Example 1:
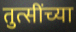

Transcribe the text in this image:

तुत्सींच्या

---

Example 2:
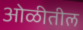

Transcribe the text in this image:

ओळीतील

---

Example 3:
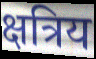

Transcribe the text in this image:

क्षत्रिय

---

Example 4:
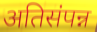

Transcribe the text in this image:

अतिसंपन्न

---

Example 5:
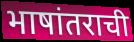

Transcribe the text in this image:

भाषांतराची